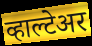
व्हाल्टेअर